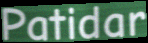
Patidar